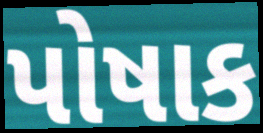
પોષાક